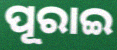
ପୂରାଇ